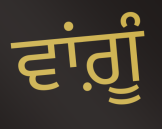
ਵਾਂਗ਼ੂੰ